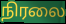
நிரலை